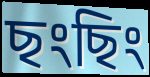
ছংছিং